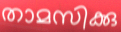
താമസിക്കു